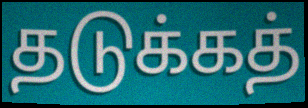
தடுக்கத்